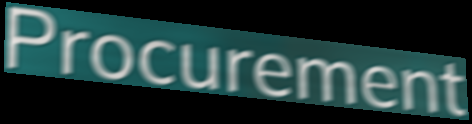
Procurement